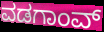
ವಡಗಾಂವ್